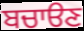
ਬਚਾੳਣ